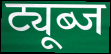
ट्यूब्ज